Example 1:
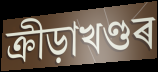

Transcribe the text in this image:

ক্ৰীড়াখণ্ডৰ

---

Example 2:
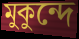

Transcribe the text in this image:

মুকুন্দে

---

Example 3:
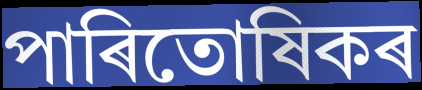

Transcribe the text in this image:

পাৰিতোষিকৰ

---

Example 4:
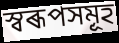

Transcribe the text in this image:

স্বৰূপসমূহ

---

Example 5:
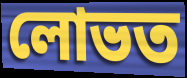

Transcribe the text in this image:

লোভত